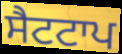
ਸੈਟਟਾਪ